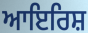
ਆਇਰਿਸ਼